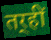
तर्हीं